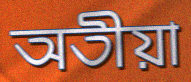
অতীয়া